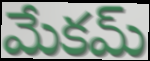
మేకమ్